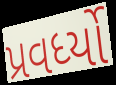
પ્રવર્ધ્યો